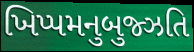
ખિપ્પમનુબુજ્ઝતિ